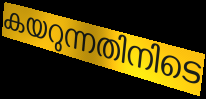
കയറുന്നതിനിടെ